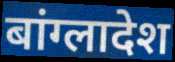
बांग्लादेश